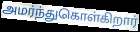
அமர்ந்துகொள்கிறார்